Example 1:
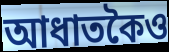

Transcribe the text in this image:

আধাতকৈও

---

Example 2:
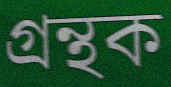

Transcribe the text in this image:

গ্ৰন্থক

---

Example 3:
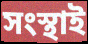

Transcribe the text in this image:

সংস্থাই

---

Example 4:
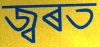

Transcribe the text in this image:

জ্বৰত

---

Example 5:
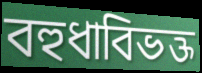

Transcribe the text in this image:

বহুধাবিভক্ত